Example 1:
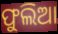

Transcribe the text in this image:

ଫୁଲିଆ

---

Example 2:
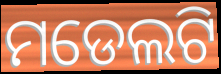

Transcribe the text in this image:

ମଡେଲଟି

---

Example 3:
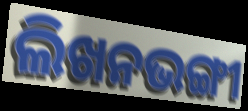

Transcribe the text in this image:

ଲିଖନଭଙ୍ଗୀ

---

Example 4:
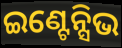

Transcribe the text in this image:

ଇଣ୍ଟେନ୍ସିଭ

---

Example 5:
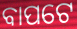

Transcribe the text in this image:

ବାପଟେ